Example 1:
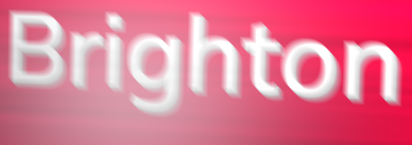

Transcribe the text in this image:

Brighton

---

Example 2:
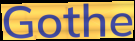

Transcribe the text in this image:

Gothe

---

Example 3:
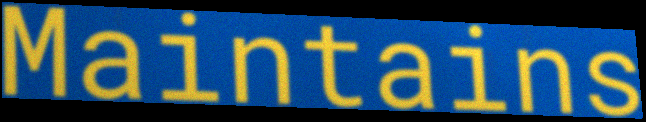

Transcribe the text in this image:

Maintains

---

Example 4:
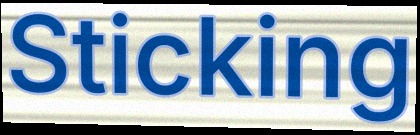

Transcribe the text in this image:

Sticking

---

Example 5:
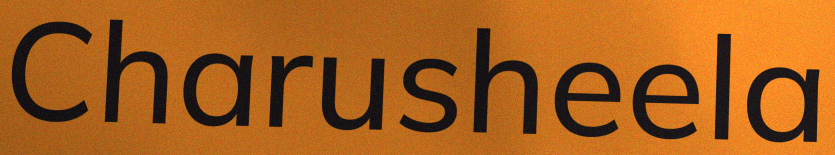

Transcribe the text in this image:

Charusheela